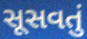
સૂસવતું